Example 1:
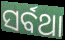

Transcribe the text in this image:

ସର୍ବଥା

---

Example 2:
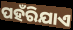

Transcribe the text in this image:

ପହଁରିଯାଏ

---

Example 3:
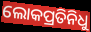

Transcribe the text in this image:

ଲୋକପ୍ରତିନିଧୁ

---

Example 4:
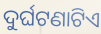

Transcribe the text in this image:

ଦୁର୍ଘଟଣାଟିଏ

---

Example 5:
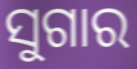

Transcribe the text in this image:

ସୁଗାର